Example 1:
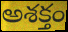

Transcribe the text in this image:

అశక్తం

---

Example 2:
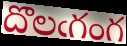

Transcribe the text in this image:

దొలఁగంగ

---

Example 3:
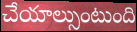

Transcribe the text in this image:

చేయాల్సుంటుంది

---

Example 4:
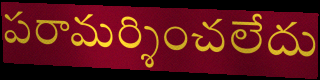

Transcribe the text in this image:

పరామర్శించలేదు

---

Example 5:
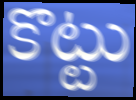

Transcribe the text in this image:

కొట్టు